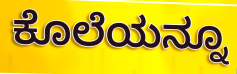
ಕೊಲೆಯನ್ನೂ